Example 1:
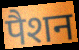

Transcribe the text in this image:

पैशन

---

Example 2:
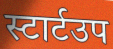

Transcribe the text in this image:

स्टार्टउप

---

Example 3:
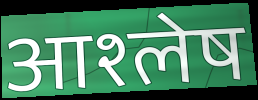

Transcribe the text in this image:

आश्लेष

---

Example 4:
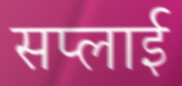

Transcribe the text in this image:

सप्‍लाई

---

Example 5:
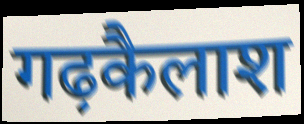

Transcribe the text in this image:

गढ़कैलाश